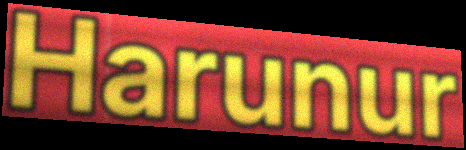
Harunur